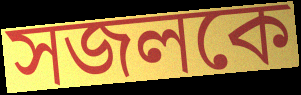
সজলকে